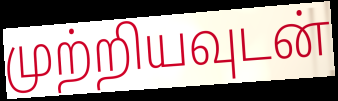
முற்றியவுடன்